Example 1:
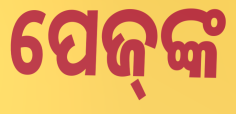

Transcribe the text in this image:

ପେଜ୍‌ଙ୍କ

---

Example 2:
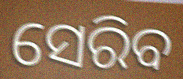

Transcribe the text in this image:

ସେରିବ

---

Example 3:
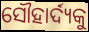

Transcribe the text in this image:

ସୌହାର୍ଦ୍ୟକୁ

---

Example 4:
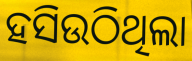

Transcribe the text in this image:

ହସିଉଠିଥିଲା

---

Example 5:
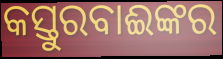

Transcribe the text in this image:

କସ୍ତୁରବାଈଙ୍କର